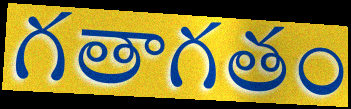
గతాగతం